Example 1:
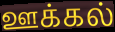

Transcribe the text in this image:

ஊக்கல்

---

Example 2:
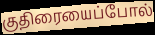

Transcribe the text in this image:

குதிரையைப்போல்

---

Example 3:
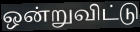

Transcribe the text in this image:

ஒன்றுவிட்டு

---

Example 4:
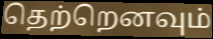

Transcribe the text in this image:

தெற்றெனவும்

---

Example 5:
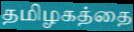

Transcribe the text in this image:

தமிழகத்தை